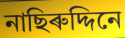
নাছিৰুদ্দিনে